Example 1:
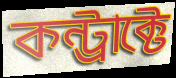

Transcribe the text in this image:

কন্ট্রাক্টে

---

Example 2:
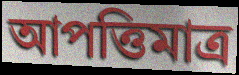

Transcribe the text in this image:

আপত্তিমাত্র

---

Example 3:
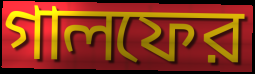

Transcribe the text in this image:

গালফের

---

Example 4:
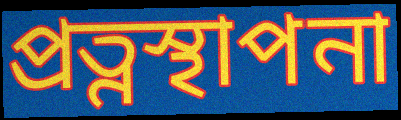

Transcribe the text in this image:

প্রত্নস্থাপনা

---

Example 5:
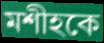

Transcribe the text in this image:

মশীহকে